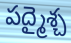
పద్మైశ్చ